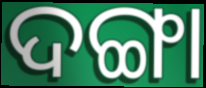
ଦଙ୍ଗା